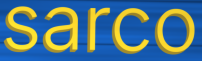
sarco